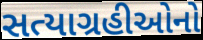
સત્યાગ્રહીઓનો